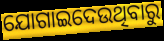
ଯୋଗାଇଦେଉଥିବାରୁ